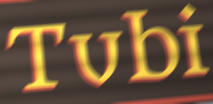
Tubi